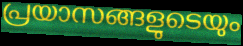
പ്രയാസങ്ങളുടെയും